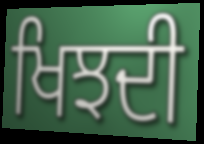
ਖਿਝਦੀ